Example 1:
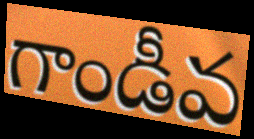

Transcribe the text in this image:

గాండీవ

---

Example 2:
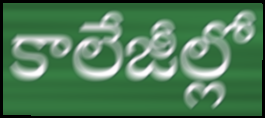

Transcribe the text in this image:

కాలేజీల్లో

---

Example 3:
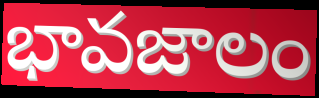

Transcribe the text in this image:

భావజాలం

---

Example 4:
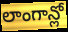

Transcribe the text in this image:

లాంగాన్లో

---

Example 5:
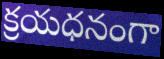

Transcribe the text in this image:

క్రయధనంగా